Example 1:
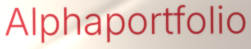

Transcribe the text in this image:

Alphaportfolio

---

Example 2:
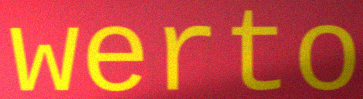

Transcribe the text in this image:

werto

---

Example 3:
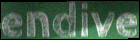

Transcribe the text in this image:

endive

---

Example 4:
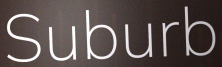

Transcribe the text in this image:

Suburb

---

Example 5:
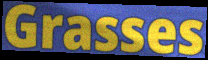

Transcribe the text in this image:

Grasses